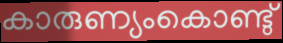
കാരുണ്യംകൊണ്ടു്